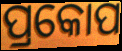
ପ୍ରକୋପ